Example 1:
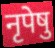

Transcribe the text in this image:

नृपेषु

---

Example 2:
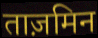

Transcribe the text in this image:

ताज़मिन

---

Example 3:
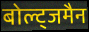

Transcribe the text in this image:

बोल्ट्जमैन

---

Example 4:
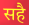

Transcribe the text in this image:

सहै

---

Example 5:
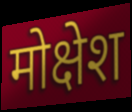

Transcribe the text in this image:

मोक्षेश